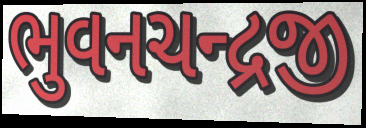
ભુવનચન્દ્રજી